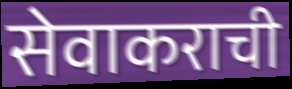
सेवाकराची